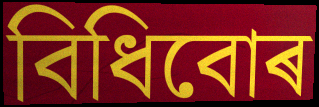
বিধিবোৰ